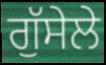
ਗੁੱਸੇਲੇ